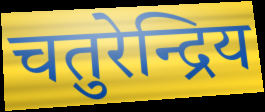
चतुरेन्द्रिय